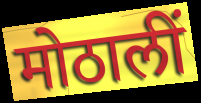
मोठालीं